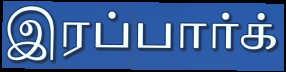
இரப்பார்க்